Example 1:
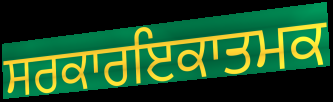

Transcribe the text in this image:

ਸਰਕਾਰਇਕਾਤਮਕ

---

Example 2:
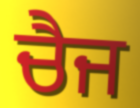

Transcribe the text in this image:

ਚੈਜ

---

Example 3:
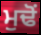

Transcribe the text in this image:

ਮੁਢੋਂ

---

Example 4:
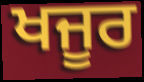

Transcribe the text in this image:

ਖਜੂਰ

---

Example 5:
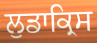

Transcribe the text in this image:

ਲੁਡਾਕ੍ਰਿਸ